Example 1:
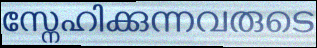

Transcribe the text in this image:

സ്നേഹിക്കുന്നവരുടെ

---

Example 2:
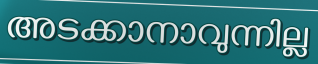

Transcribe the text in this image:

അടക്കാനാവുന്നില്ല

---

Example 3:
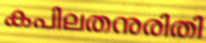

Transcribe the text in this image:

കപിലതനുരിതി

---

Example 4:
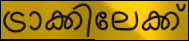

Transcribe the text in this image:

ട്രാക്കിലേക്ക്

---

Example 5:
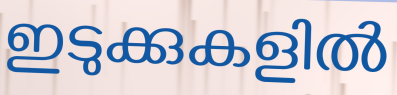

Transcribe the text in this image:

ഇടുക്കുകളിൽ